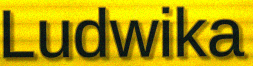
Ludwika